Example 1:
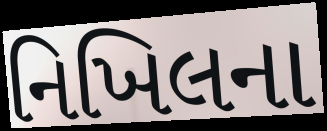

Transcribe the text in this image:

નિખિલના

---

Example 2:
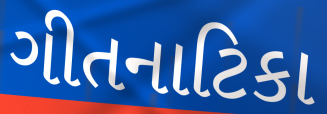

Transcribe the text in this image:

ગીતનાટિકા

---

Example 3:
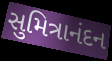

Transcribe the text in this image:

સુમિત્રાનંદન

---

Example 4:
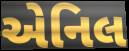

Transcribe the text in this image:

એનિલ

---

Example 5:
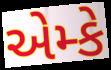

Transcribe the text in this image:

એમ્કે